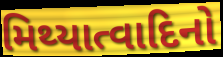
મિથ્યાત્વાદિનો